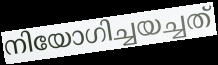
നിയോഗിച്ചയച്ചത്